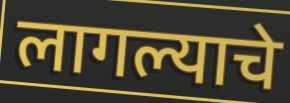
लागल्याचे